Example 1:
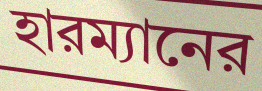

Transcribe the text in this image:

হারম্যানের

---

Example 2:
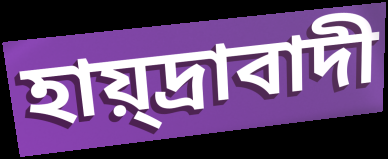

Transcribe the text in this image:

হায়্দ্রাবাদী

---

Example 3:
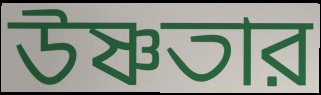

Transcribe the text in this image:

উষ্ণতার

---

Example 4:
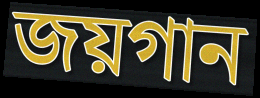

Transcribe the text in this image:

জয়গান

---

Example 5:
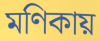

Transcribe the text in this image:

মণিকায়